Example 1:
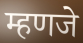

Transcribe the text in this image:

म्हणजे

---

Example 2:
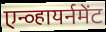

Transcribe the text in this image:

एन्व्हायर्नमेंट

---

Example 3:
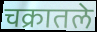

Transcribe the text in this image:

चक्रातले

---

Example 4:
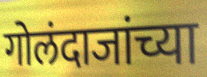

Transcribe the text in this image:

गोलंदाजांच्या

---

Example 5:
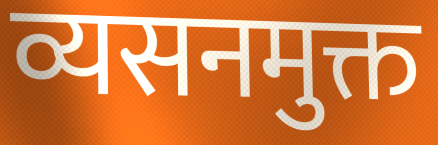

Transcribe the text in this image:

व्यसनमुक्त